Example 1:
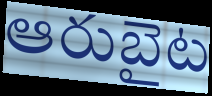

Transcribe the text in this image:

ఆరుబైట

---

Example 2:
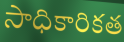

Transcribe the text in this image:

సాధికారికత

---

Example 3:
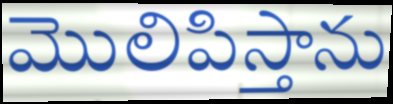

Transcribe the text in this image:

మొలిపిస్తాను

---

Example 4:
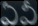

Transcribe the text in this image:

ఏవీ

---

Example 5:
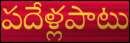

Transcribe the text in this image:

పదేళ్లపాటు